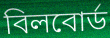
বিলবোর্ড